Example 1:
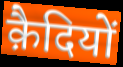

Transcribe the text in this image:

क़ैदियों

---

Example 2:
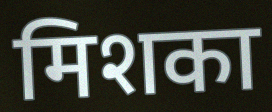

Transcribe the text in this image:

मिशका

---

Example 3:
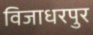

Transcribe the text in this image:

विजाधरपुर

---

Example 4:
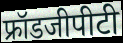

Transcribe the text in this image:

फ्रॉडजीपीटी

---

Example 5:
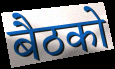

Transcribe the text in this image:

बैठको